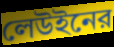
লেউইনের